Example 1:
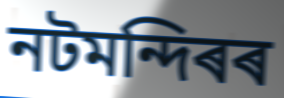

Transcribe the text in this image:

নটমন্দিৰৰ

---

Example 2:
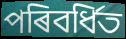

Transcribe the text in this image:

পৰিবৰ্ধিত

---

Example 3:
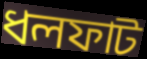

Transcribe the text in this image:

ধলফাট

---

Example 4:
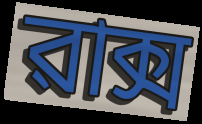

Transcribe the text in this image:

ৱাক্স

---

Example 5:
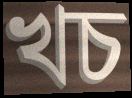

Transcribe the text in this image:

খচ